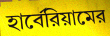
হার্বেরিয়ামের